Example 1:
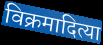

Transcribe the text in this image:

विक्रमादित्या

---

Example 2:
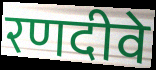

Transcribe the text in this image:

रणदीवे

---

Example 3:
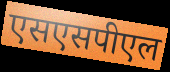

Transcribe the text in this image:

एसएसपीएल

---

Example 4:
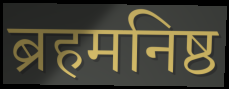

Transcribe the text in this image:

ब्रहमनिष्ठ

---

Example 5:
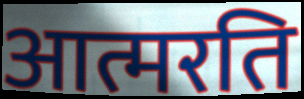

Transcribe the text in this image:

आत्मरति